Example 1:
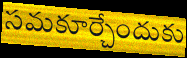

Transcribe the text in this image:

సమకూర్చేందుకు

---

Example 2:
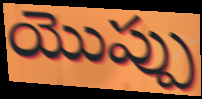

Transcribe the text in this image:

యొప్పు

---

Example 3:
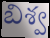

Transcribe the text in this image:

బిశ్వ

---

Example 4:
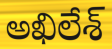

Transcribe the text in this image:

అఖిలేశ్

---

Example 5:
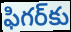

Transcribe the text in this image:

ఫిగర్‌కు